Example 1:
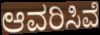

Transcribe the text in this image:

ಆವರಿಸಿವೆ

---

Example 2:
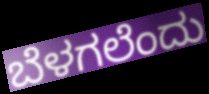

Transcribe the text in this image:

ಬೆಳಗಲೆಂದು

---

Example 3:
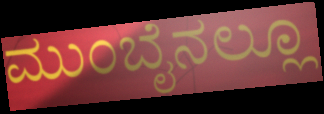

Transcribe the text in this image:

ಮುಂಬೈನಲ್ಲೂ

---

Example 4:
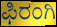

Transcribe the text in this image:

ಫಿರಂಗಿ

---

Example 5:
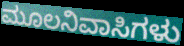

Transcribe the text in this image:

ಮೂಲನಿವಾಸಿಗಳು